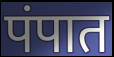
पंपात